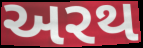
અરથ